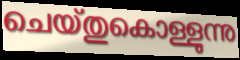
ചെയ്തുകൊള്ളുന്നു